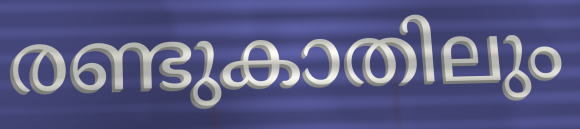
രണ്ടുകാതിലും